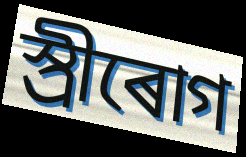
স্ত্ৰীৰোগ